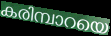
കരിമ്പാറയെ